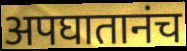
अपघातानंच